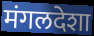
मंगलदेशा